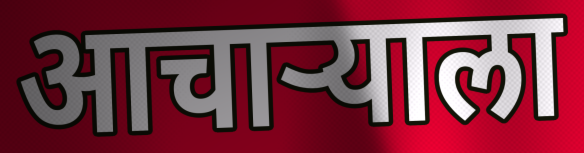
आचाऱ्याला